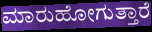
ಮಾರುಹೋಗುತ್ತಾರೆ